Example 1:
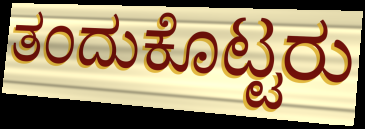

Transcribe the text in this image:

ತಂದುಕೊಟ್ಟರು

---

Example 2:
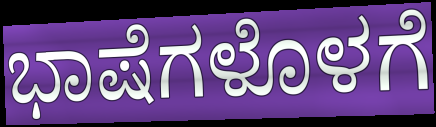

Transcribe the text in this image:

ಭಾಷೆಗಳೊಳಗೆ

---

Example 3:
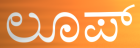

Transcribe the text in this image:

ಲೂಪ್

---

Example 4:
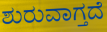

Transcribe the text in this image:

ಶುರುವಾಗ್ತದೆ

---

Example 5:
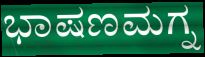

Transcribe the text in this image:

ಭಾಷಣಮಗ್ನ